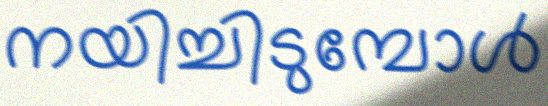
നയിച്ചിടുമ്പോൾ